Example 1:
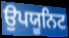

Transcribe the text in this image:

ਉਪਯੂਨਿਟ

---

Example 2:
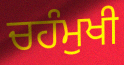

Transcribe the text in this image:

ਚਹੰਮੁਖੀ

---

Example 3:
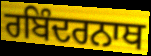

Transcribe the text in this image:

ਰਬਿੰਦਰਨਾਥ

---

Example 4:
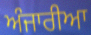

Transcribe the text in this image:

ਅੰਜਾਰੀਆ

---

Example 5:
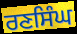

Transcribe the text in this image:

ਰਣਸਿੰਘ